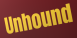
Unhound